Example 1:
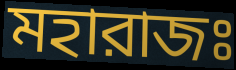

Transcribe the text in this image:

মহারাজঃ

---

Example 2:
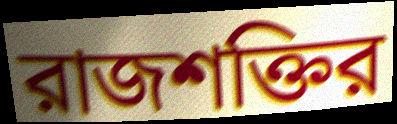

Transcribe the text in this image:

রাজশক্তির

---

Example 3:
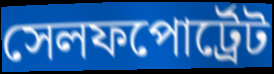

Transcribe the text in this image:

সেলফপোর্ট্রেট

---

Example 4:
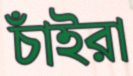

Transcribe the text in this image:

চাঁইরা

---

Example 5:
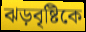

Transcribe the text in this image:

ঝড়বৃষ্টিকে